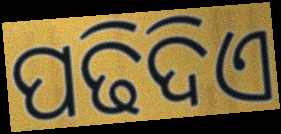
ପଢିଦିଏ